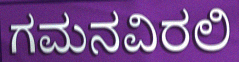
ಗಮನವಿರಲಿ